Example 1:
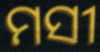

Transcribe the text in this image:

ମସୀ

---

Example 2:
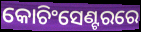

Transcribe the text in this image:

କୋଚିଂସେଣ୍ଟରରେ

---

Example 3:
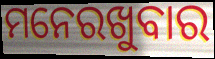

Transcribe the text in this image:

ମନେରଖୁବାର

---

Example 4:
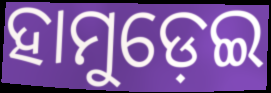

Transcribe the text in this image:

ହାମୁଡ଼େଇ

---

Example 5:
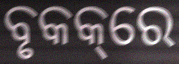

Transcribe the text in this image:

ବୃକକ୍‌ରେ